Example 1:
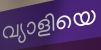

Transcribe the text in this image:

വ്യാളിയെ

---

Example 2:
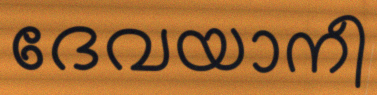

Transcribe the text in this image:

ദേവയാനീ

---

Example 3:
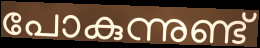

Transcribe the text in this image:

പോകുന്നുണ്ട്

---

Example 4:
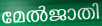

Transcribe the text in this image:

മേൽജാതി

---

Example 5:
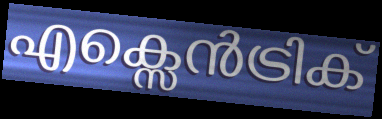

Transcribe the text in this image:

എക്സെൻട്രിക്